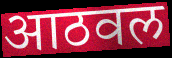
आठवल